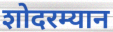
शोदरम्यान